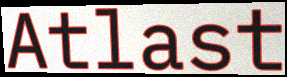
Atlast